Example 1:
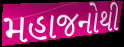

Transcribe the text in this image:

મહાજનોથી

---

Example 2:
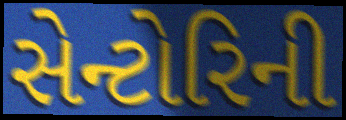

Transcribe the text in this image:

સેન્ટોરિની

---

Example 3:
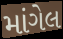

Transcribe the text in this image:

માંગેલ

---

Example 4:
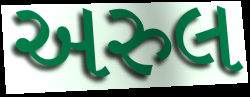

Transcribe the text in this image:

અરુલ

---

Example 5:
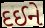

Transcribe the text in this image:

દઈને